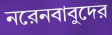
নরেনবাবুদের